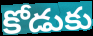
కోడుకు